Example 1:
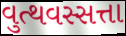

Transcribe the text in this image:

વુત્થવસ્સત્તા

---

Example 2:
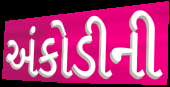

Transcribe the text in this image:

અંકોડીની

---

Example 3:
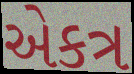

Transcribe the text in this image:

એકત્ર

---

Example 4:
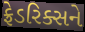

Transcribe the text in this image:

ફ્રેડરિક્સને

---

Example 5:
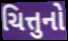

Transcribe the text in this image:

ચિત્તુનો